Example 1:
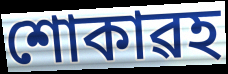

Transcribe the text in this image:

শোকাৱহ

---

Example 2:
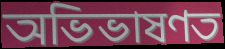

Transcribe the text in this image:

অভিভাষণত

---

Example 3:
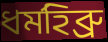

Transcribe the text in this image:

ধৰ্মহিব্ৰু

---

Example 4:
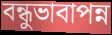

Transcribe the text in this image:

বন্ধুভাবাপন্ন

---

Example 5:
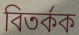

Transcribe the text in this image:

বিতৰ্কক